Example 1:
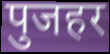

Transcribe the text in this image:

पुजहर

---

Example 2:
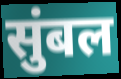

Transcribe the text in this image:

सुंबल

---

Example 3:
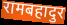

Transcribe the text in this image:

रामबहादुर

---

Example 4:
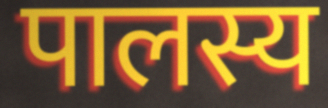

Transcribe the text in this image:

पालस्य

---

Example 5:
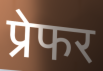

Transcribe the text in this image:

प्रेफर